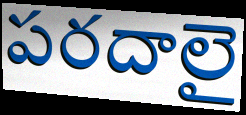
పరదాలై